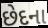
છેદના